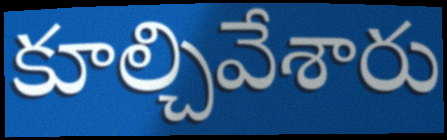
కూల్చివేశారు